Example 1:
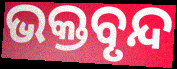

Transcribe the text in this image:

ଭକ୍ତବୃନ୍ଦ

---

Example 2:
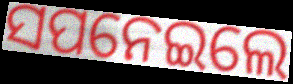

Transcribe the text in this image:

ସପନେଇଲେ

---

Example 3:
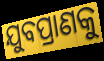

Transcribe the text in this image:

ଯୁବପ୍ରାଣକୁ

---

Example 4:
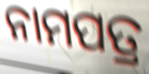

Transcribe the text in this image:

ନାମପତ୍ର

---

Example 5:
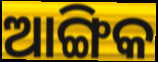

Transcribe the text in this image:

ଆଙ୍ଗିକ